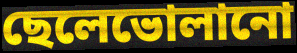
ছেলেভোলানো